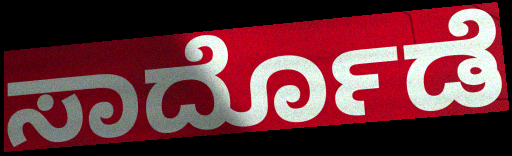
ಸಾರ್ದೊಡೆ